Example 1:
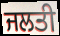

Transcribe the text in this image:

ਜਲਤੀ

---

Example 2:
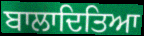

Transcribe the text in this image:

ਬਾਲਾਦਿਤਿਆ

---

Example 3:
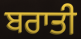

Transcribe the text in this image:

ਬਰਾਤੀ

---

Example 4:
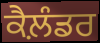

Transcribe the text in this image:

ਕੈਲ਼ੰਡਰ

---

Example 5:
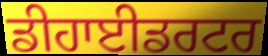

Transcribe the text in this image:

ਡੀਹਾਈਡਰਟਰ